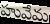
హువేమ